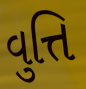
વુત્તિ